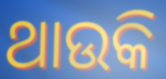
ଥାଉକି